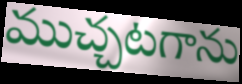
ముచ్చటగాను